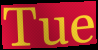
Tue